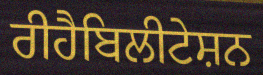
ਰੀਹੈਬਿਲੀਟੇਸ਼ਨ